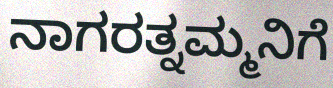
ನಾಗರತ್ನಮ್ಮನಿಗೆ